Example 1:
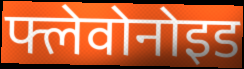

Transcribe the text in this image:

फ्लेवोनोइड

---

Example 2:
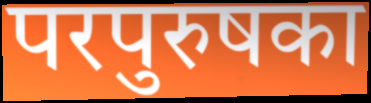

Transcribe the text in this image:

परपुरुषका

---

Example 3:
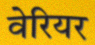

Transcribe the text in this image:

वेरियर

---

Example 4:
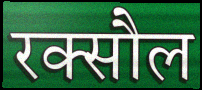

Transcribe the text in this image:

रक्सौल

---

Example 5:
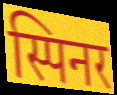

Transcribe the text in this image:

स्पिनर